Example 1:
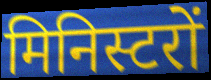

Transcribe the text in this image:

मिनिस्टरों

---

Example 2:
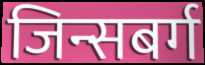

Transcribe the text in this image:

जिन्सबर्ग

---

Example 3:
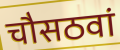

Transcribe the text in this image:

चौसठवां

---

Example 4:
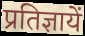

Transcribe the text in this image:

प्रतिज्ञायें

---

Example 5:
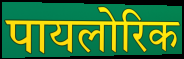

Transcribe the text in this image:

पायलोरिक